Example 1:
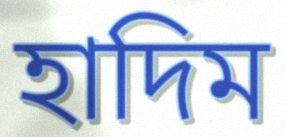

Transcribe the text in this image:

হাদিম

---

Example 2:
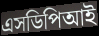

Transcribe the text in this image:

এসডিপিআই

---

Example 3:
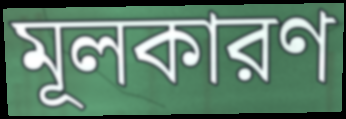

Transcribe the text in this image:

মূলকারণ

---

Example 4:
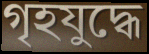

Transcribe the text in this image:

গৃহযুদ্ধে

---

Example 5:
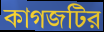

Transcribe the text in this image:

কাগজটির